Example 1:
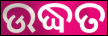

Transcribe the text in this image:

ଉଦ୍ଧତ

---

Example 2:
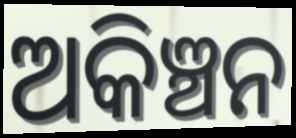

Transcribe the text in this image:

ଅକିଞ୍ଚନ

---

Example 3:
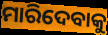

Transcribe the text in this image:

ମାରିଦେବାକୁ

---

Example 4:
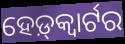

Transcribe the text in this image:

ହେଡ଼୍‌କ୍ୱାର୍ଟର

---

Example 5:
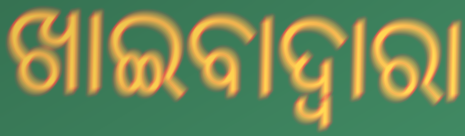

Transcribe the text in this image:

ଖାଇବାଦ୍ଵାରା